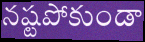
నష్టపోకుండా